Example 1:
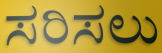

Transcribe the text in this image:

ಸರಿಸಲು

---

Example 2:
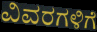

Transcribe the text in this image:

ವಿವರಗಳಿಗೆ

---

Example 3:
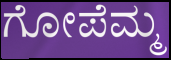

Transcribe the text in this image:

ಗೋಪೆಮ್ಮ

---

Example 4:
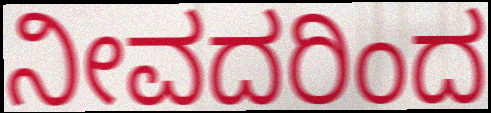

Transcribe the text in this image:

ನೀವದರಿಂದ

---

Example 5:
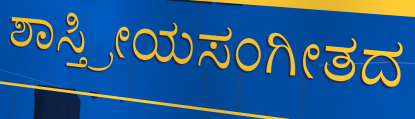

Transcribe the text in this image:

ಶಾಸ್ತ್ರೀಯಸಂಗೀತದ